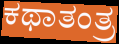
ಕಥಾತಂತ್ರ